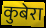
कुबेरा